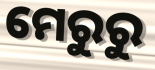
ମେରୁରୁ